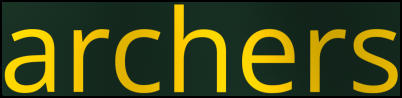
archers